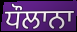
ਧੌਲਾਨਾ